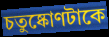
চতুষ্কোণটাকে